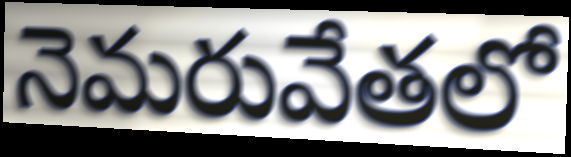
నెమరువేతలో